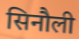
सिनौली